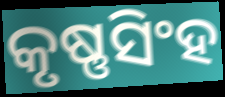
କୃଷ୍ଣସିଂହ